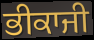
ਭੀਕਾਜੀ